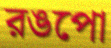
রঙপো